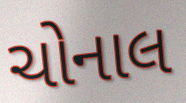
ચોનાલ